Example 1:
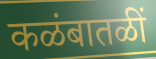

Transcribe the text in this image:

कळंबातळीं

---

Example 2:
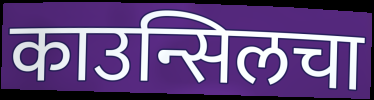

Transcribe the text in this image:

काउन्सिलचा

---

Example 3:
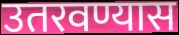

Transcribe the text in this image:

उतरवण्यास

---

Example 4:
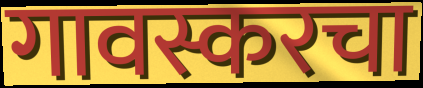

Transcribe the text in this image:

गावस्करचा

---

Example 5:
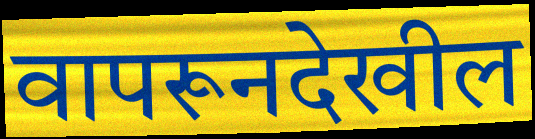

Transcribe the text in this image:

वापरूनदेखील